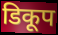
डिकूप